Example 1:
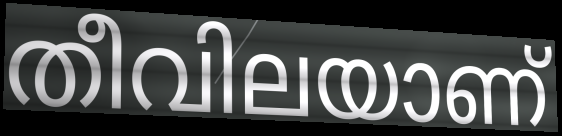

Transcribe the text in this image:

തീവിലയാണ്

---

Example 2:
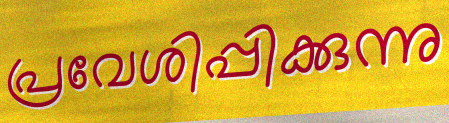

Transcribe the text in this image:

പ്രവേശിപ്പിക്കുന്നു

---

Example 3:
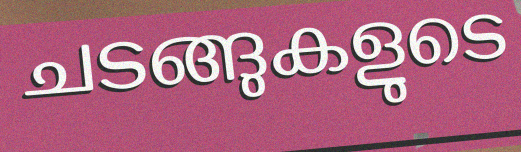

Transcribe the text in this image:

ചടങ്ങുകളുടെ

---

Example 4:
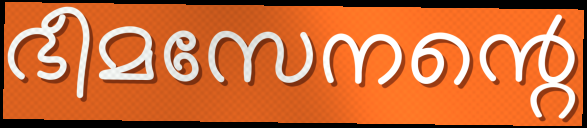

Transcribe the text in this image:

ഭീമസേനന്റെ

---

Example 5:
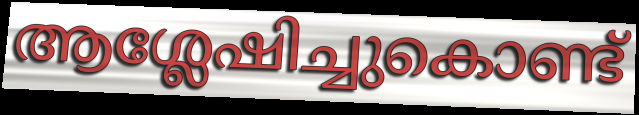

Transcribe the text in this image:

ആശ്ലേഷിച്ചുകൊണ്ട്